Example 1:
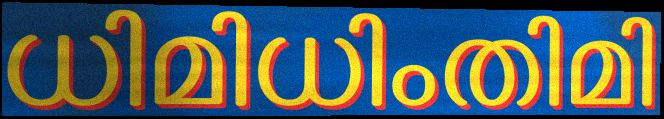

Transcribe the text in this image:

ധിമിധിംതിമി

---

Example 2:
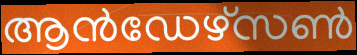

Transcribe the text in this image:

ആൻഡേഴ്സൺ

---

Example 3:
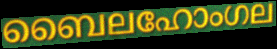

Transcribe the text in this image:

ബൈലഹോംഗല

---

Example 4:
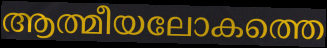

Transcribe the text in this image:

ആത്മീയലോകത്തെ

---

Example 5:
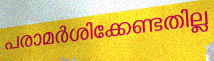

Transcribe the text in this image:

പരാമർശിക്കേണ്ടതില്ല